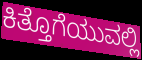
ಕಿತ್ತೊಗೆಯುವಲ್ಲಿ